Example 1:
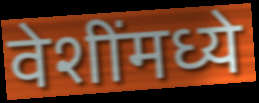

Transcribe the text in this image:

वेशींमध्ये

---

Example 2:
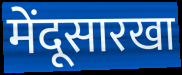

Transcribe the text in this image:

मेंदूसारखा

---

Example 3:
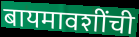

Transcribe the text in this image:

बायमावशींची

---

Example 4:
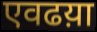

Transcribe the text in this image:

एवढय़ा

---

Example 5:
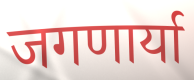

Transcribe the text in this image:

जगणार्या